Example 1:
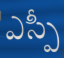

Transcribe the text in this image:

ఎస్పీ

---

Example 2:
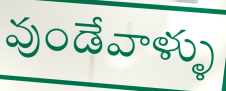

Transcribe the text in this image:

వుండేవాళ్ళు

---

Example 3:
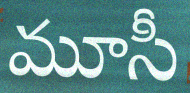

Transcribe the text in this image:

మూసీ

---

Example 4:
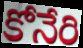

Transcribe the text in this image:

కోనేరి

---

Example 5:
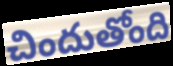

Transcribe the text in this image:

చిందుతోంది